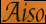
Aiso